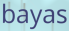
bayas